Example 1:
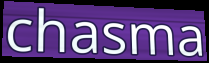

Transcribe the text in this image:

chasma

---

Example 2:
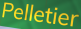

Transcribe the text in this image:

Pelletier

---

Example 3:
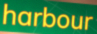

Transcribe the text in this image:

harbour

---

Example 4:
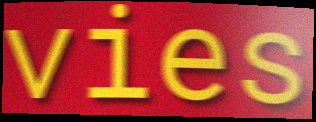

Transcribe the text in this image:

vies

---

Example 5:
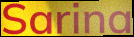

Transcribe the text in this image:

Sarina